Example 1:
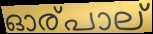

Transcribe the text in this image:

ഓര്പാല്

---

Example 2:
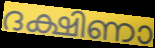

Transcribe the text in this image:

ദക്ഷിണാ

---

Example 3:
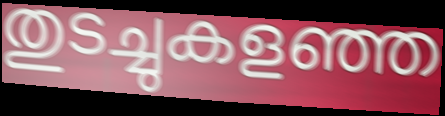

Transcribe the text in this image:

തുടച്ചുകളഞ്ഞ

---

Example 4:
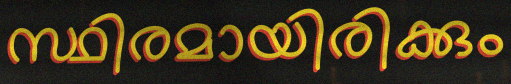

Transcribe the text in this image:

സ്ഥിരമായിരിക്കും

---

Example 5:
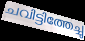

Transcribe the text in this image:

ചവിട്ടിത്തേച്ചു